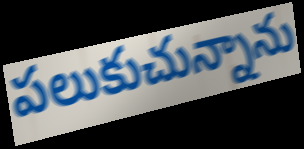
పలుకుచున్నాను